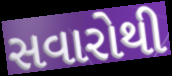
સવારોથી